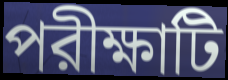
পরীক্ষাটি